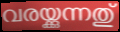
വരയ്ക്കുന്നതു്